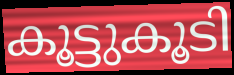
കൂട്ടുകൂടി